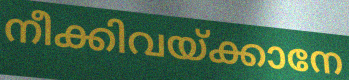
നീക്കിവയ്ക്കാനേ